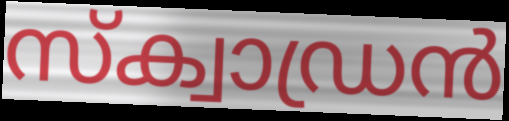
സ്ക്വാഡ്രൻ